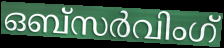
ഒബ്സർവിംഗ്